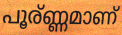
പൂര്ണ്ണമാണ്